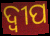
ଦ୍ବୀପ